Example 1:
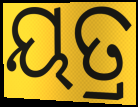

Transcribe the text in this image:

ୟତ୍ର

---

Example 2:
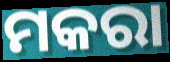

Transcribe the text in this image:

ମକରା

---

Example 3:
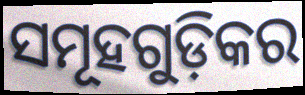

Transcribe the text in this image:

ସମୂହଗୁଡ଼ିକର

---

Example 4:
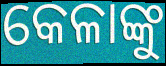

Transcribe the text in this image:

କେଳାଙ୍କୁ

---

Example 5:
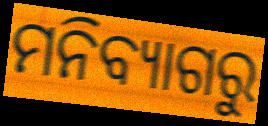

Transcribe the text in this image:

ମନିବ୍ୟାଗରୁ